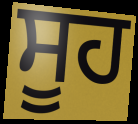
ਸੂਹ